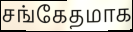
சங்கேதமாக